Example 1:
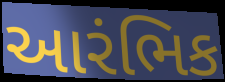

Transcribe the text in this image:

આરંભિક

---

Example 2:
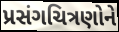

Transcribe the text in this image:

પ્રસંગચિત્રણોને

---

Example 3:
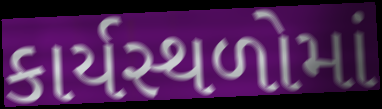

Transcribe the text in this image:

કાર્યસ્થળોમાં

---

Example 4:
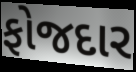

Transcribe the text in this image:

ફોજદાર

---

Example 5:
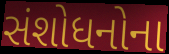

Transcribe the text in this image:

સંશોધનોના